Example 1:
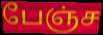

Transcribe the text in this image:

பேஞ்ச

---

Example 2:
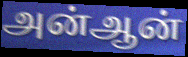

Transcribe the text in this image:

அன்ஆன்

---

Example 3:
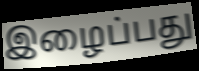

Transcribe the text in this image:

இழைப்பது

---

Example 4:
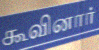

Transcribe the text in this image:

கூவினார்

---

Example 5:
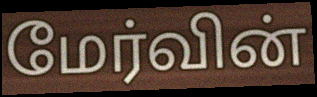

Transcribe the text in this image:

மேர்வின்